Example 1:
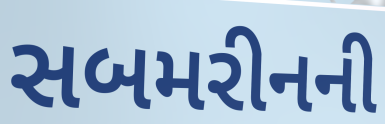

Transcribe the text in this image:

સબમરીનની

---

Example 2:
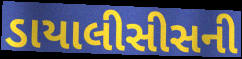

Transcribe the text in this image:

ડાયાલીસીસની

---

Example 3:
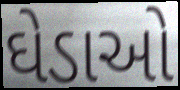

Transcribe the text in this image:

ઘેડાઓ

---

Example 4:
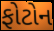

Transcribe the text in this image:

ફોટોન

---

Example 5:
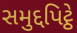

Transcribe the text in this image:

સમુદ્દપિટ્ઠે